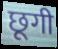
छूगी